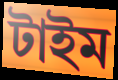
টাইম